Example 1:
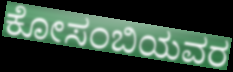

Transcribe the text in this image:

ಕೋಸಂಬಿಯವರ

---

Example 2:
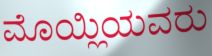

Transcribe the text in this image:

ಮೊಯ್ಲಿಯವರು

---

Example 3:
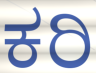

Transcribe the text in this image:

ಕರಿ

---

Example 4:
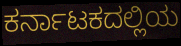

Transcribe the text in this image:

ಕರ್ನಾಟಕದಲ್ಲಿಯ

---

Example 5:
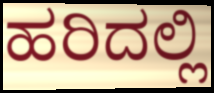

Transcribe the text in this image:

ಹರಿದಲ್ಲಿ